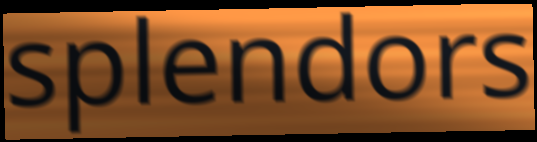
splendors